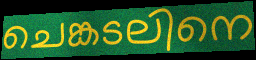
ചെങ്കടലിനെ